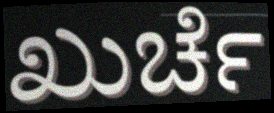
ಖುರ್ಚೆ